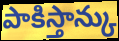
పాకిస్తాన్కు